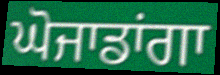
ਘੋਜਾਡਾਂਗਾ